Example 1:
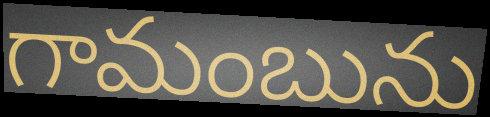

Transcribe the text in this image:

గామంబును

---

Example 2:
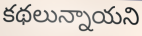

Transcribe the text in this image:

కథలున్నాయని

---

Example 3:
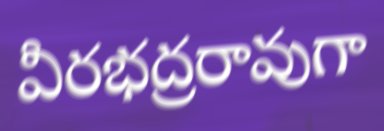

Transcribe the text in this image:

వీరభద్రరావుగా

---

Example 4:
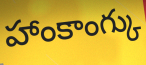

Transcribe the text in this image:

హాంకాంగ్కు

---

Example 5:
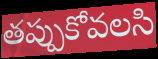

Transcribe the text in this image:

తప్పుకోవలసి